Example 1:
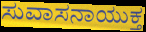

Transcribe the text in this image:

ಸುವಾಸನಾಯುಕ್ತ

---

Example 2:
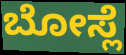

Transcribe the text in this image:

ಬೋಸ್ಲೆ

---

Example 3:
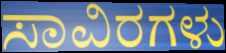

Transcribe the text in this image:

ಸಾವಿರಗಳು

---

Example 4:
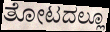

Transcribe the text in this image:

ತೋಟದಲ್ಲೂ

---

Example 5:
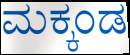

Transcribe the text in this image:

ಮಕ್ಕಂಡ